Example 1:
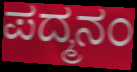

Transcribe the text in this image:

ಪದ್ಮನಂ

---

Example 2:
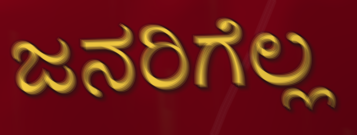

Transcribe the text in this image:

ಜನರಿಗೆಲ್ಲ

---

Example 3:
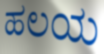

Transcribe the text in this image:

ಹಲಯ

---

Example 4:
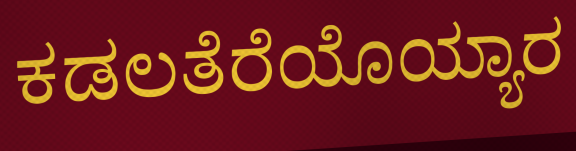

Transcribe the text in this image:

ಕಡಲತೆರೆಯೊಯ್ಯಾರ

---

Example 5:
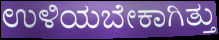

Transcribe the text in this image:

ಉಳಿಯಬೇಕಾಗಿತ್ತು